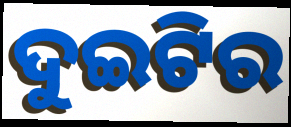
ଦୁଇଟିର